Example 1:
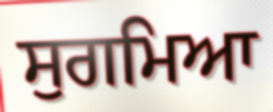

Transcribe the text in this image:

ਸੁਗਮਿਆ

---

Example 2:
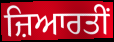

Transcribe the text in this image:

ਜ਼ਿਆਰਤੀਂ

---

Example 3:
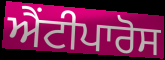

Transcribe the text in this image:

ਐਂਟੀਪਾਰੋਸ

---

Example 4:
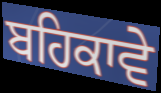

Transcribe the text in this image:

ਬਹਿਕਾਵੇ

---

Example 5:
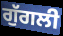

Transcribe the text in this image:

ਗੁੱਗਲੀ